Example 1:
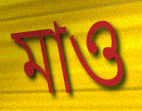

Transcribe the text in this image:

মাও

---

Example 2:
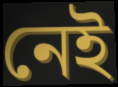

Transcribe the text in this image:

নেই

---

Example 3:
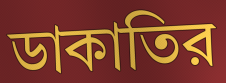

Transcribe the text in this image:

ডাকাতির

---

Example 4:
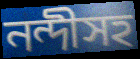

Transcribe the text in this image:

নন্দীসহ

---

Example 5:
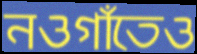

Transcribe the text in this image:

নওগাঁতেও